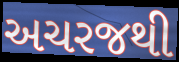
અચરજથી